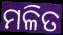
ମଳିତ